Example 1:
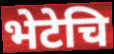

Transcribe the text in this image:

भेटेचि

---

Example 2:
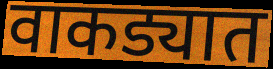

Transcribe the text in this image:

वाकड्यात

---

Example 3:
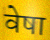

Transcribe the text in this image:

वेषा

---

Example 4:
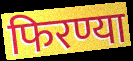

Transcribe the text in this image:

फिरण्या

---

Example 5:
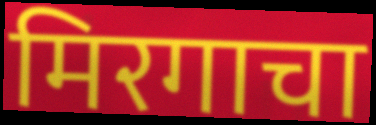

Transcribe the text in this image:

मिरगाचा